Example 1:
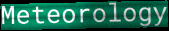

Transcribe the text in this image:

Meteorology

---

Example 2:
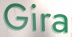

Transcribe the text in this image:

Gira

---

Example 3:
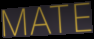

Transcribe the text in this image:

MATE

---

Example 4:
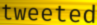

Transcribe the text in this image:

tweeted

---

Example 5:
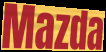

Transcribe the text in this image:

Mazda